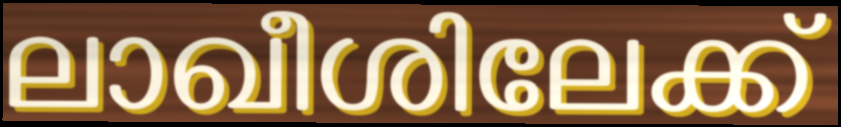
ലാഖീശിലേക്ക്